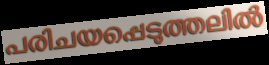
പരിചയപ്പെടുത്തലിൽ